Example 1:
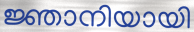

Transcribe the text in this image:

ജ്ഞാനിയായി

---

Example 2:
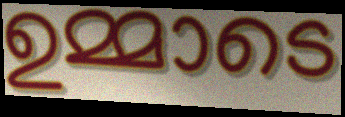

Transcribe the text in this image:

ഉമ്മാടെ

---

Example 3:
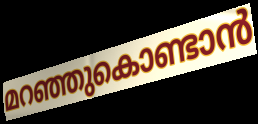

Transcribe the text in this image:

മറഞ്ഞുകൊണ്ടാൻ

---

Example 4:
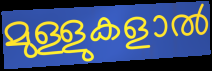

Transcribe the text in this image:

മുള്ളുകളാൽ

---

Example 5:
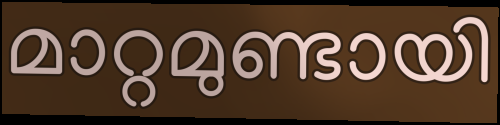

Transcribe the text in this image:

മാറ്റമുണ്ടായി